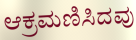
ಆಕ್ರಮಣಿಸಿದವು